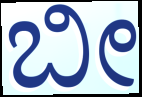
ಬೀ